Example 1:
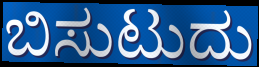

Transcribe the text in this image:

ಬಿಸುಟುದು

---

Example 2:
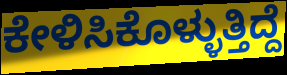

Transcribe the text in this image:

ಕೇಳಿಸಿಕೊಳ್ಳುತ್ತಿದ್ದೆ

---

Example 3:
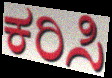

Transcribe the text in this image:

ಕರಿಸಿ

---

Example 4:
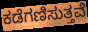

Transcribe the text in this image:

ಕಡೆಗಣಿಸುತ್ತವೆ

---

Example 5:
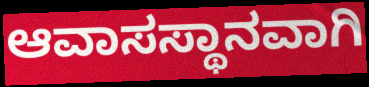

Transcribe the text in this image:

ಆವಾಸಸ್ಥಾನವಾಗಿ